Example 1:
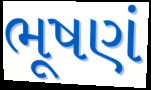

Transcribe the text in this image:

ભૂષણં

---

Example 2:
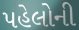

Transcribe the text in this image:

પહેલોની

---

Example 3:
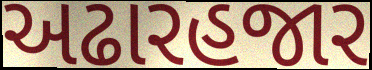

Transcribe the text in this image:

અઢારહજાર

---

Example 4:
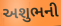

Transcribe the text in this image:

અશુભની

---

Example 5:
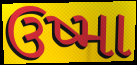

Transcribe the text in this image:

ઉષ્મા